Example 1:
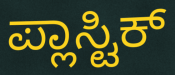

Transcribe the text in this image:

ಪ್ಲಾಸ್ಟಿಕ್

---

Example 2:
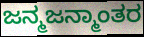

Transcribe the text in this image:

ಜನ್ಮಜನ್ಮಾಂತರ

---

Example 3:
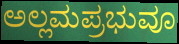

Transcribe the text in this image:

ಅಲ್ಲಮಪ್ರಭುವೂ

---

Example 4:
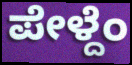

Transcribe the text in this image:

ಪೇಳ್ದೆಂ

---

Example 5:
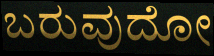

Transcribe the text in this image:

ಬರುವುದೋ